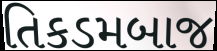
તિકડમબાજ